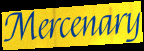
Mercenary